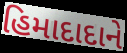
હિમાદાદાને